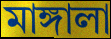
মাঙ্গালা